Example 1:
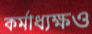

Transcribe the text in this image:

কর্মাধ্যক্ষও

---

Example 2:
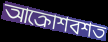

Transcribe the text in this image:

আক্রোশবশত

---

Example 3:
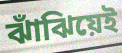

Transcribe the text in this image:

ঝাঁঝিয়েই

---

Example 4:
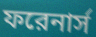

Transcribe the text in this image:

ফরেনার্স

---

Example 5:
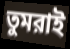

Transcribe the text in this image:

তুমরাই